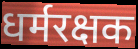
धर्मरक्षक